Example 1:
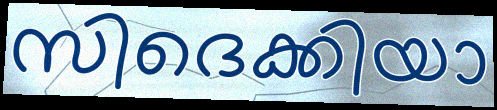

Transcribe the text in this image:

സിദെക്കിയാ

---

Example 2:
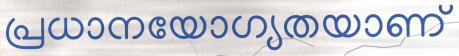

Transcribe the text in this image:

പ്രധാനയോഗ്യതയാണ്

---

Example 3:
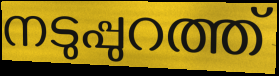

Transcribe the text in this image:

നടുപ്പുറത്ത്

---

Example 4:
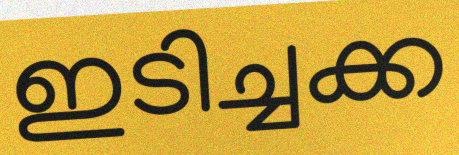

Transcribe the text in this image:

ഇടിച്ചക്ക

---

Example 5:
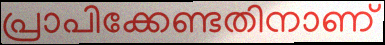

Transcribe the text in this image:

പ്രാപിക്കേണ്ടതിനാണ്